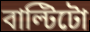
বাল্টিটো